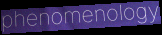
phenomenology